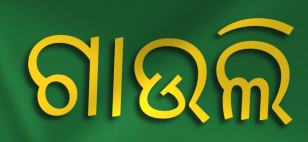
ଗାଉଲି